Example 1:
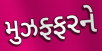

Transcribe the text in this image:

મુઝફ્ફરને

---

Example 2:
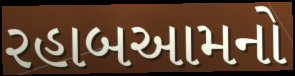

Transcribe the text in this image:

રહાબઆમનો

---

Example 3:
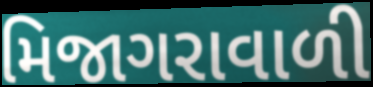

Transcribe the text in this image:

મિજાગરાવાળી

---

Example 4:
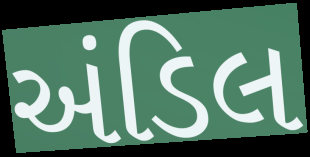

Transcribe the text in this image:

અંડિલ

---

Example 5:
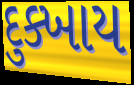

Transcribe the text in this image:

દુક્ખાય